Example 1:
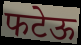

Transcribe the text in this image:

फटेऊ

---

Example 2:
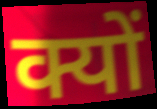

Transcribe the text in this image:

क्यों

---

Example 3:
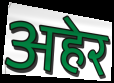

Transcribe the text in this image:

अहेर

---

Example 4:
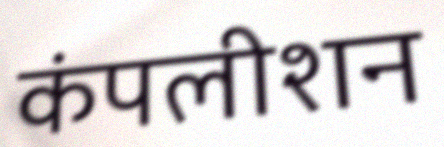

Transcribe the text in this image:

कंपलीशन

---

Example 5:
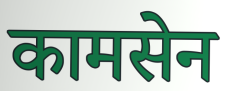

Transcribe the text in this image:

कामसेन